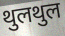
थुलथुल